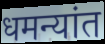
धमन्यांत